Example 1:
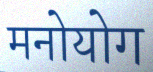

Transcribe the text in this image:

मनोयोग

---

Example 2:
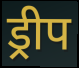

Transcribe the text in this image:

ड्रीप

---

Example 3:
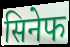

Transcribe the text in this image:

सिनेफ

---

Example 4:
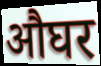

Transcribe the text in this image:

औघर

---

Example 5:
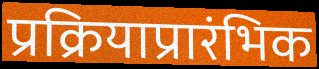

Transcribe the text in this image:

प्रक्रियाप्रारंभिक